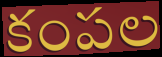
కంపల